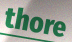
thore